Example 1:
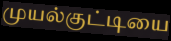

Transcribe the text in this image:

முயல்குட்டியை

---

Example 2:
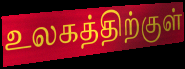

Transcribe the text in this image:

உலகத்திற்குள்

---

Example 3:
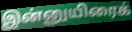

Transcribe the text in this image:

இன்னுயிரைக்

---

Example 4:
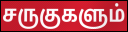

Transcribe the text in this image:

சருகுகளும்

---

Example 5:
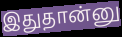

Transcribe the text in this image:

இதுதான்னு